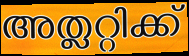
അത്ലറ്റിക്ക്